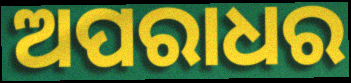
ଅପରାଧର